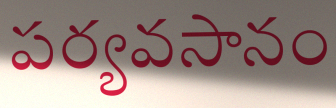
పర్యవసానం